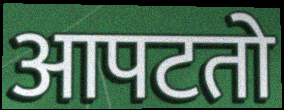
आपटतो